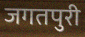
जगतपुरी